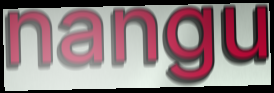
nangu